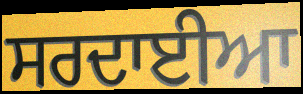
ਸਰਦਾਈਆ